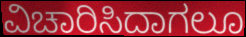
ವಿಚಾರಿಸಿದಾಗಲೂ